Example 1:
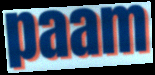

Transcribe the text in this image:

paam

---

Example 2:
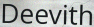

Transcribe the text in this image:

Deevith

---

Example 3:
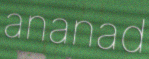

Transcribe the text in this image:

ananad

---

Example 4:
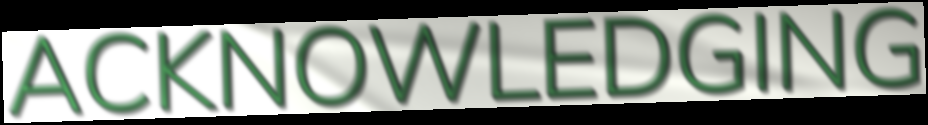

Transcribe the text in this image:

ACKNOWLEDGING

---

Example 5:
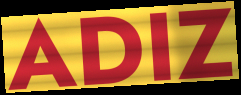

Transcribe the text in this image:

ADIZ